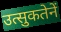
उत्सुकतेनें